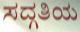
ಸದ್ಗತಿಯ